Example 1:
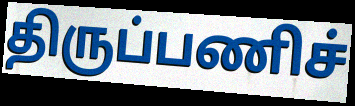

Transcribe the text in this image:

திருப்பணிச்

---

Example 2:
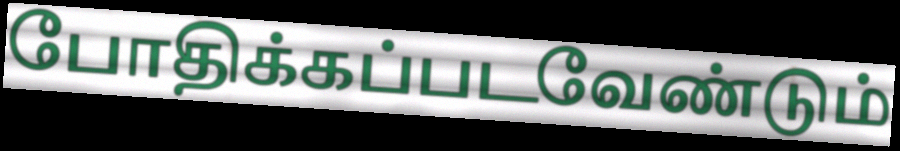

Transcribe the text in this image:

போதிக்கப்படவேண்டும்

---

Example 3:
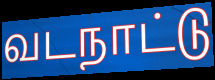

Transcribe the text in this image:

வடநாட்டு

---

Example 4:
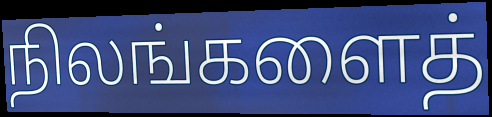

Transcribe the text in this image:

நிலங்களைத்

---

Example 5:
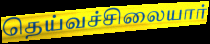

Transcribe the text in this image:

தெய்வச்சிலையார்